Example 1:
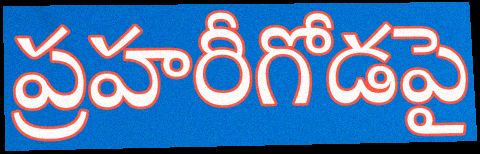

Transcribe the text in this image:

ప్రహరీగోడపై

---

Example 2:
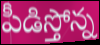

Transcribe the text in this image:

పీడిస్తోన్న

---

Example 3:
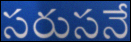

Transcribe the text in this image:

సరుసనే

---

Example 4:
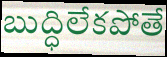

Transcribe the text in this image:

బుద్ధిలేకపోతే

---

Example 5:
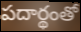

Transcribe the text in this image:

పదార్థంతో